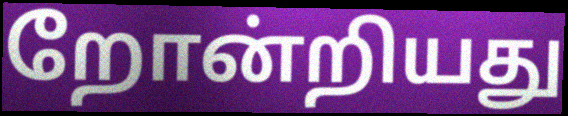
றோன்றியது